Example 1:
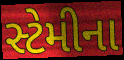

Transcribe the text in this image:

સ્ટેમીના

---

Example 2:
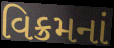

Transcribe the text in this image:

વિક્રમનાં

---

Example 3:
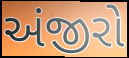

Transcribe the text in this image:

અંજીરો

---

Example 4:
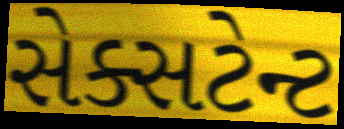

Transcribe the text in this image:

સેક્સટેન્ટ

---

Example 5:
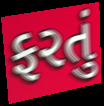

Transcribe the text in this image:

ફરતું